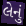
લેનું